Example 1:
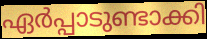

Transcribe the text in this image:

ഏർപ്പാടുണ്ടാക്കി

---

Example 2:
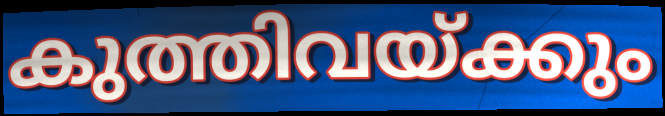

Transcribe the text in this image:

കുത്തിവയ്ക്കും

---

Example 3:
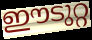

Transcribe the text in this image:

ഈടുറ്റ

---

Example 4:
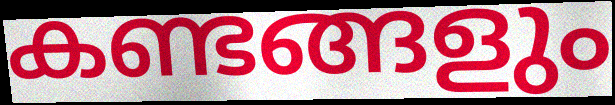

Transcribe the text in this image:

കണ്ടങ്ങളും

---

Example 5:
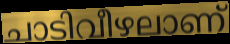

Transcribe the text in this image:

ചാടിവീഴലാണ്